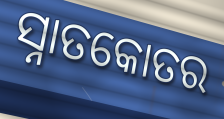
ସ୍ନାତକୋତର